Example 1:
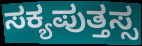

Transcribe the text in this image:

ಸಕ್ಯಪುತ್ತಸ್ಸ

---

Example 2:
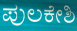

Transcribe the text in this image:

ಪುಲಕೇಶಿ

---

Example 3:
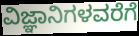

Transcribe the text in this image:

ವಿಜ್ಞಾನಿಗಳವರೆಗೆ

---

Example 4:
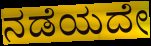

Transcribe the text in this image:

ನಡೆಯದೇ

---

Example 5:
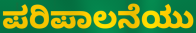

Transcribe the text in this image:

ಪರಿಪಾಲನೆಯು